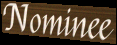
Nominee